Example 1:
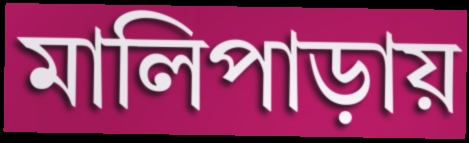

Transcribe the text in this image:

মালিপাড়ায়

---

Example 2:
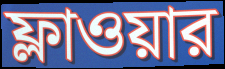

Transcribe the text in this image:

ফ্লাওয়ার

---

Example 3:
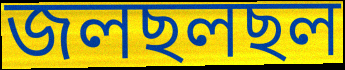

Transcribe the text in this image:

জলছলছল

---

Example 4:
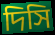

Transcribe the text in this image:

দিসি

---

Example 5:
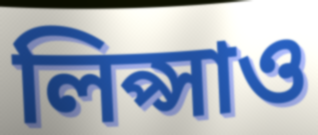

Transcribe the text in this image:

লিপ্সাও